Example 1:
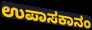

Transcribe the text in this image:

ಉಪಾಸಕಾನಂ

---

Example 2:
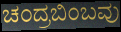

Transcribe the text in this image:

ಚಂದ್ರಬಿಂಬವು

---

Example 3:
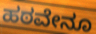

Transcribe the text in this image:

ಹಠವೇನೂ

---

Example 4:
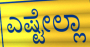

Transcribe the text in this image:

ಎಷ್ಟೇಲ್ಲಾ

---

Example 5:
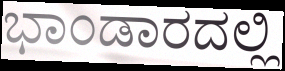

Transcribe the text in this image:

ಭಾಂಡಾರದಲ್ಲಿ